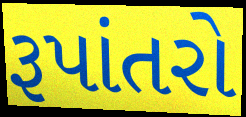
રૂપાંતરો